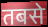
तबसे